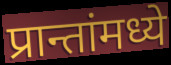
प्रान्तांमध्ये